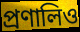
প্রণালিও